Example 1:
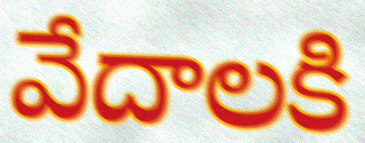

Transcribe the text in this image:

వేదాలకి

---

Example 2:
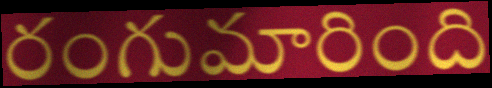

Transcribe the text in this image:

రంగుమారింది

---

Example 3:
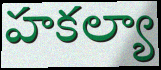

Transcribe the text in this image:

హకల్యా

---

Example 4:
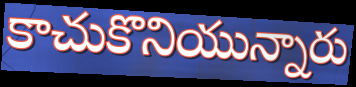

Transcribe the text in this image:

కాచుకొనియున్నారు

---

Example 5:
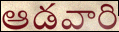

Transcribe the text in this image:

ఆడవారి